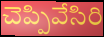
చెప్పివేసిరి